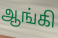
ஆங்கி